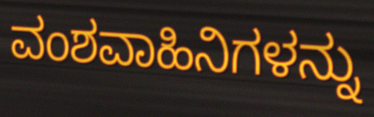
ವಂಶವಾಹಿನಿಗಳನ್ನು